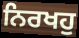
ਨਿਰਖਹੁ